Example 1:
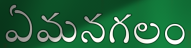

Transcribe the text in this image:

ఏమనగలం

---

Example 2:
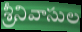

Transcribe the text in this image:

శ్రీనివాసుల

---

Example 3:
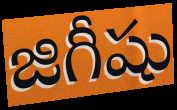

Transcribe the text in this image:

జిగీషు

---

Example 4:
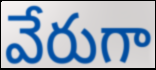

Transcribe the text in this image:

వేరుగా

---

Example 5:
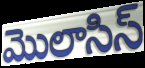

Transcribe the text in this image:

మొలాసిస్